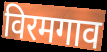
विरमगाव